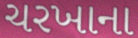
ચરખાના